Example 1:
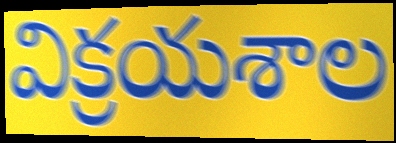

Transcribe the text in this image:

విక్రయశాల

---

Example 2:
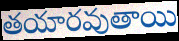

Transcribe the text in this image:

తయారవుతాయి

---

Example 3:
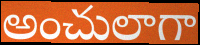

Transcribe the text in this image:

అంచులాగా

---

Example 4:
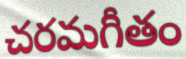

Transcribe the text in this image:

చరమగీతం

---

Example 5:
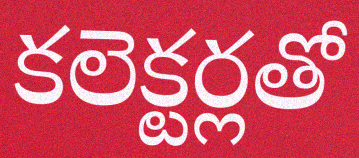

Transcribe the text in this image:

కలెక్టర్లతో